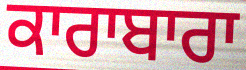
ਕਾਰਾਬਾਰਾ